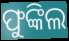
ଫୁଙ୍କିଲ